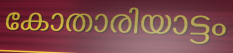
കോതാരിയാട്ടം